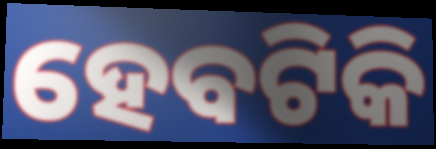
ହେବଟିକି